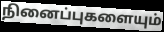
நினைப்புகளையும்